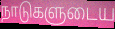
நாடுகளுடைய